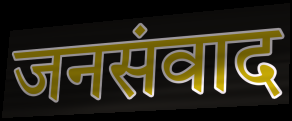
जनसंवाद